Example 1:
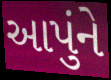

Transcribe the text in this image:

આપુંને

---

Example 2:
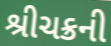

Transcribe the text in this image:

શ્રીચક્રની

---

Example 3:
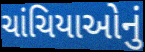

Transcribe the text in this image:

ચાંચિયાઓનું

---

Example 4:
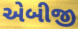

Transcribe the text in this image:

એબીજી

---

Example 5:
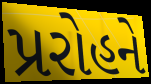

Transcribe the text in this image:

પ્રરોહને